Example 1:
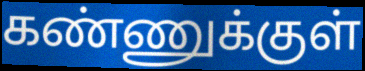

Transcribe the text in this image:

கண்ணுக்குள்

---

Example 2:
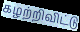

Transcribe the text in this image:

கழற்றிவிட்டு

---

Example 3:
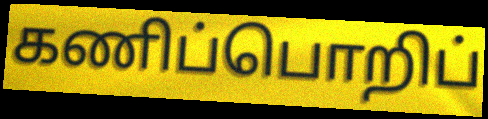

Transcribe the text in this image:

கணிப்பொறிப்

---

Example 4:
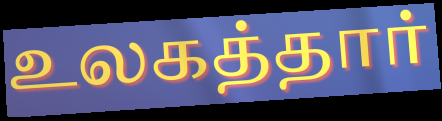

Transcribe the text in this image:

உலகத்தார்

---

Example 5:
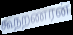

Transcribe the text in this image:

கூநறணரன்